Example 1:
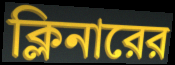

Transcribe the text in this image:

ক্লিনারের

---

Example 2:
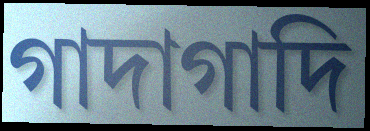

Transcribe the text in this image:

গাদাগাদি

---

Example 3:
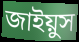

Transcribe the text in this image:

জাইয়ুস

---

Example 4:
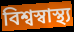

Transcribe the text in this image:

বিশ্বস্বাস্থ্য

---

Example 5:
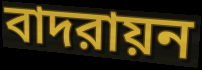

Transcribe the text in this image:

বাদরায়ন